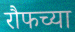
रौफच्या